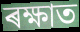
ৰক্ষাত